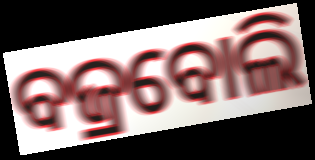
ବଜ୍ରବୋଲି